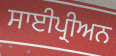
ਸਾਈਪ੍ਰੀਅਨ